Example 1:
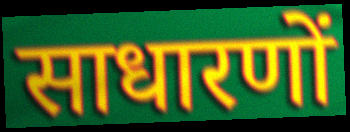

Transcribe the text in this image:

साधारणों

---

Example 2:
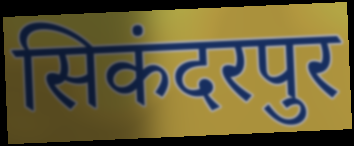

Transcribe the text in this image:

सिकंदरपुर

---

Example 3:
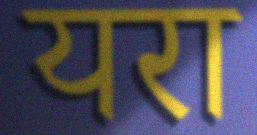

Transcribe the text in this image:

यरा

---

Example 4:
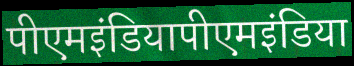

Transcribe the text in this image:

पीएमइंडियापीएमइंडिया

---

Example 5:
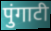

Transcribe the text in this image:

पुंगाटी